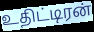
உதிட்டிரன்